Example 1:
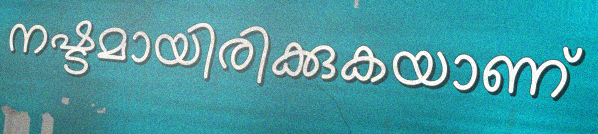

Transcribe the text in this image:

നഷ്ടമായിരിക്കുകയാണ്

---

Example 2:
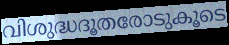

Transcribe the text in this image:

വിശുദ്ധദൂതരോടുകൂടെ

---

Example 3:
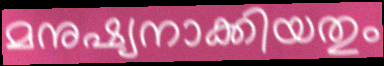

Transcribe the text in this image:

മനുഷ്യനാക്കിയതും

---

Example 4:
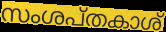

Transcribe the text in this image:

സംശപ്തകാശ്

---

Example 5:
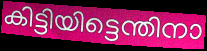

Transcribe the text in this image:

കിട്ടിയിട്ടെന്തിനാ